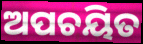
ଅପଚୟିତ